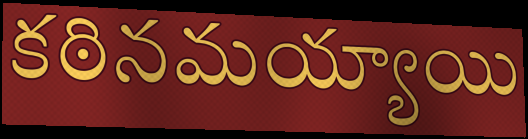
కఠినమయ్యాయి